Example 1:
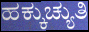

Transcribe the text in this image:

ಹಕ್ಕುಚ್ಯುತಿ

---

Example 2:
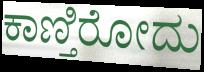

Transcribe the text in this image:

ಕಾಣ್ತಿರೋದು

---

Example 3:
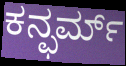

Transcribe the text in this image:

ಕನ್ಫರ್ಮ್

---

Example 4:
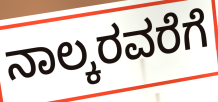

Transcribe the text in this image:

ನಾಲ್ಕರವರೆಗೆ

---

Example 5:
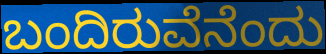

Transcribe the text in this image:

ಬಂದಿರುವೆನೆಂದು